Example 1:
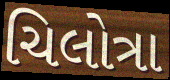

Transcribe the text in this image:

ચિલોત્રા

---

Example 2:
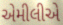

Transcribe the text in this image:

એમીલીએ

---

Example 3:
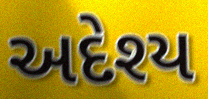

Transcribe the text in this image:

અદેશ્ય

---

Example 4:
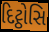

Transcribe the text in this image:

દિટ્ઠોસિ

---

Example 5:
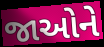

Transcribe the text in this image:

જાઓને